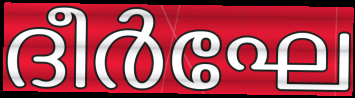
ദീർഘേ